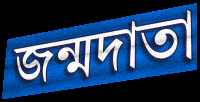
জন্মদাতা